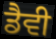
ਡੈਵੀ